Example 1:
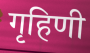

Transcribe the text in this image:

गृहिणी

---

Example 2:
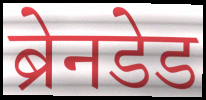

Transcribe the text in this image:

ब्रेनडेड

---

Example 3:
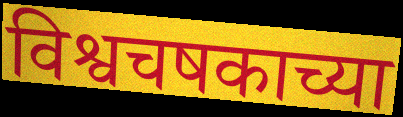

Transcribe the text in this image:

विश्वचषकाच्या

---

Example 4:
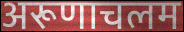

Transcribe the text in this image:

अरूणाचलम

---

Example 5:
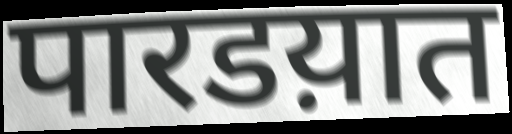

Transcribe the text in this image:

पारडय़ात